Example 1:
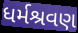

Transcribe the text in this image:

ધર્મશ્રવણ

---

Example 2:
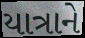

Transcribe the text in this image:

યાત્રાને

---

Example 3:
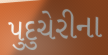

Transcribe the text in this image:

પુદુચેરીના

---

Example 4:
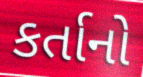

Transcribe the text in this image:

કર્તાનો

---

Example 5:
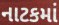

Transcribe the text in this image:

નાટકમાં